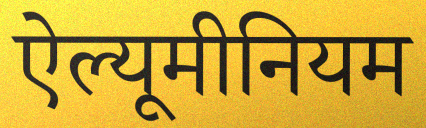
ऐल्यूमीनियम